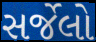
સર્જેલો